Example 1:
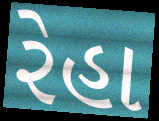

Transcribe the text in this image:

રેહા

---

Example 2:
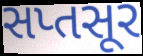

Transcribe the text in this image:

સપ્તસૂર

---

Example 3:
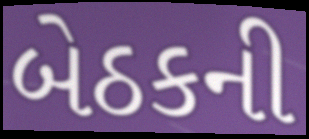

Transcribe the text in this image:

બેઠકની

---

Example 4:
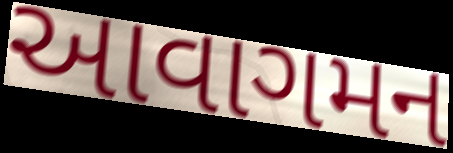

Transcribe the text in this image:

આવાગમન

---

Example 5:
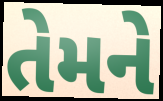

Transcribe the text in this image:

તેમને